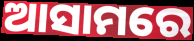
ଆସାମରେ